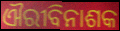
ଐରୀବିନାଶକ